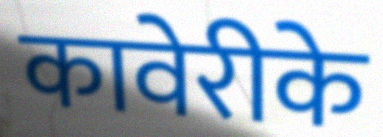
कावेरीके